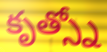
కృత్స్నో